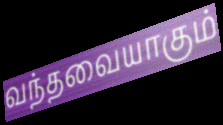
வந்தவையாகும்